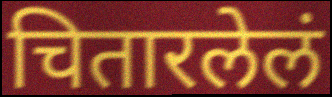
चितारलेलं